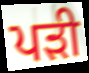
ਪਡ਼ੀ